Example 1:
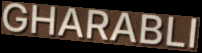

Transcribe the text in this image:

GHARABLI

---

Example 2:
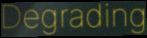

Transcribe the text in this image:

Degrading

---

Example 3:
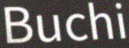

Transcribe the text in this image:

Buchi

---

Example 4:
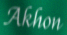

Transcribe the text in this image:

Akhon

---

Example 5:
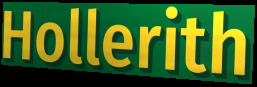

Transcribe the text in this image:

Hollerith